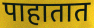
पाहातात